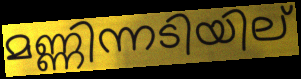
മണ്ണിന്നടിയില്